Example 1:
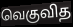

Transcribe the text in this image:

வெகுவித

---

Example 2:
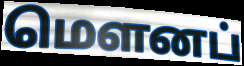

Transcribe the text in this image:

மெளனப்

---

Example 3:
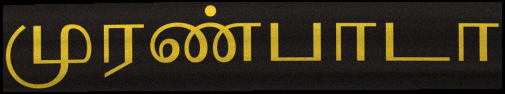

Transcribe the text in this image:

முரண்பாடா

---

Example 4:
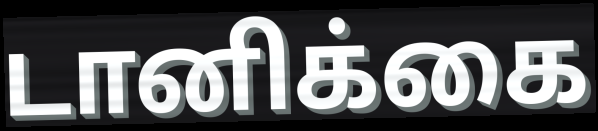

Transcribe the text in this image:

டானிக்கை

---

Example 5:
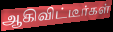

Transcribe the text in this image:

ஆகிவிட்டீர்கள்